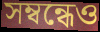
সম্বন্ধেও